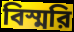
বিস্মরি